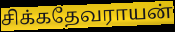
சிக்கதேவராயன்